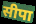
सीपा